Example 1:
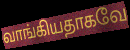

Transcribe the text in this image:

வாங்கியதாகவே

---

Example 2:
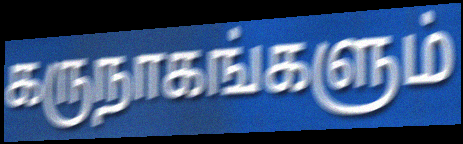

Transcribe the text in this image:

கருநாகங்களும்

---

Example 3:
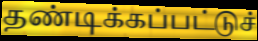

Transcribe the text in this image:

தண்டிக்கப்பட்டுச்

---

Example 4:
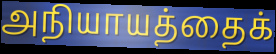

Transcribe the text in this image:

அநியாயத்தைக்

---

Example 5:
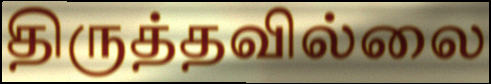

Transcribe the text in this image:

திருத்தவில்லை